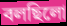
বলছিলো